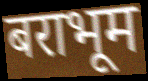
बराभूम